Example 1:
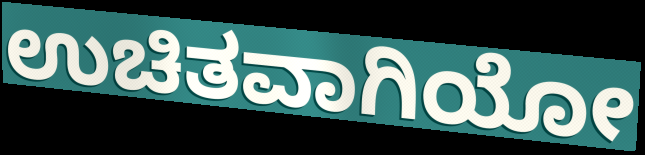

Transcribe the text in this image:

ಉಚಿತವಾಗಿಯೋ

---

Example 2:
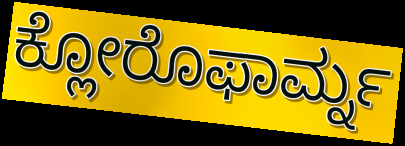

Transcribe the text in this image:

ಕ್ಲೋರೊಫಾರ್ಮ್ನ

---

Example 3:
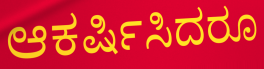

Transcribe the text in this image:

ಆಕರ್ಷಿಸಿದರೂ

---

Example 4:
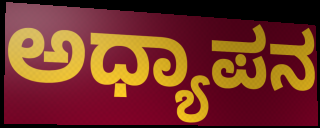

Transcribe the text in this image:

ಅಧ್ಯಾಪನ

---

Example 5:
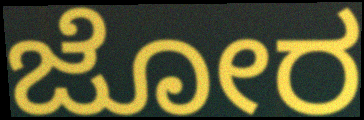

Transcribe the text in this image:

ಜೋರ